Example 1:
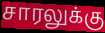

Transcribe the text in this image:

சாரலுக்கு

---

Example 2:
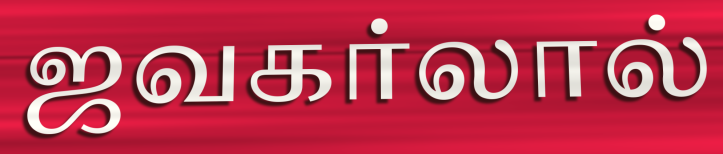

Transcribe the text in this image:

ஜவகர்லால்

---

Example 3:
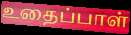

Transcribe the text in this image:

உதைப்பாள்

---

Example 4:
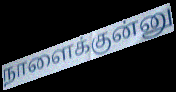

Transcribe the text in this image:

நாளைக்குன்னு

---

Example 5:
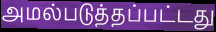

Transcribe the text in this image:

அமல்படுத்தப்பட்டது